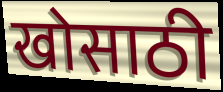
खोसाठी